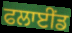
ਫਲਾਈਂਡ